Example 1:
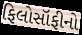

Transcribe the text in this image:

ફિલોસૉફીનો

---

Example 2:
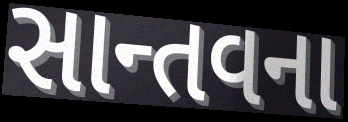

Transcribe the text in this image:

સાન્તવના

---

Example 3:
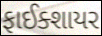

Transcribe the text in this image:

ફાઈક્શાયર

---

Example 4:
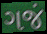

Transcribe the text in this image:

ગજં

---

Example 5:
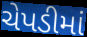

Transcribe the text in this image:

ચેપડીમાં